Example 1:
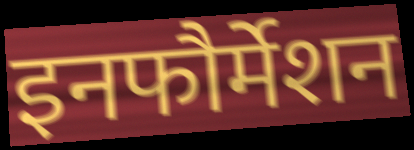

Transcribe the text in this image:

इनफौर्मेशन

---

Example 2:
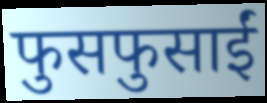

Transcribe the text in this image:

फुसफुसाईं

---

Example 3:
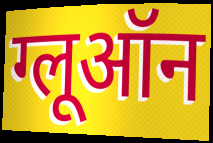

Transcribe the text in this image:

ग्लूऑन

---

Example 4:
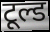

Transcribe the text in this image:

टूल्ड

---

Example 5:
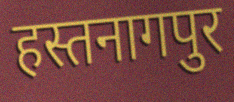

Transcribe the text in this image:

हस्तनागपुर